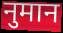
नुमान